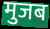
मुजब